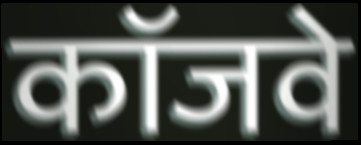
कॉजवे